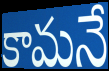
కామనే